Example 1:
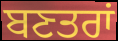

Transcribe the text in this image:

ਬਣਤਰਾਂ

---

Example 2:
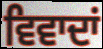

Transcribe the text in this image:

ਵਿਵਾਦਾਂ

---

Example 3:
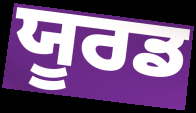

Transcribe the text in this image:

ਯੂਰਡ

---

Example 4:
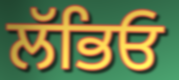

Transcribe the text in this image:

ਲੱਭਿਓ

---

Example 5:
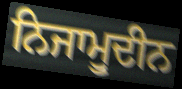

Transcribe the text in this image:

ਨਿਜਾਮੂਦੀਨ